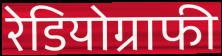
रेडियोग्राफी